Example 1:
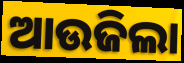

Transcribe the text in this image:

ଆଉଜିଲା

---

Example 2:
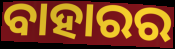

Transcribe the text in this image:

ବାହାରର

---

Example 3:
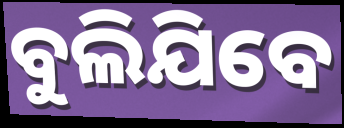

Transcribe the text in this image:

ବୁଲିଯିବେ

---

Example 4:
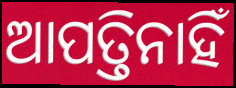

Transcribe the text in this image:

ଆପତ୍ତିନାହିଁ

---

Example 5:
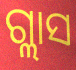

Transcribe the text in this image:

ଗ୍ଲାସ